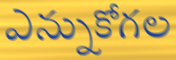
ఎన్నుకోగల